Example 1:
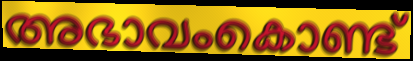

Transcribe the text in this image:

അഭാവംകൊണ്ട്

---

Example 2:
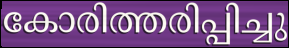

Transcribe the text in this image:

കോരിത്തരിപ്പിച്ചു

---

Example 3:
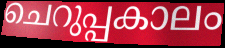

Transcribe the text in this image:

ചെറുപ്പകാലം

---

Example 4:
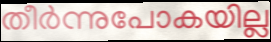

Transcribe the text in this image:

തീർന്നുപോകയില്ല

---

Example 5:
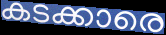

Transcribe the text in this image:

കടക്കാരെ